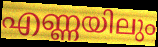
എണ്ണയിലും